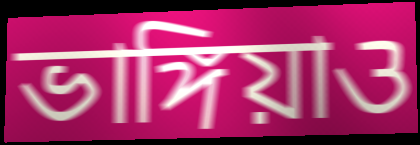
ভাঙ্গিয়াও